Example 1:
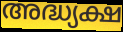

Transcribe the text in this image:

അദ്ധ്യക്ഷ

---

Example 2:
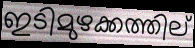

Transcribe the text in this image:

ഇടിമുഴക്കത്തില്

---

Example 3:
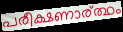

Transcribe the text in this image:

പരീക്ഷണാര്ത്ഥം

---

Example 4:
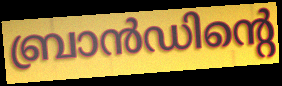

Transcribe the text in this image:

ബ്രാൻഡിന്റെ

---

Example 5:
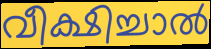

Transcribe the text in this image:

വീക്ഷിച്ചാൽ